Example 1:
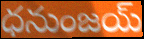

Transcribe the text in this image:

ధనుంజయ్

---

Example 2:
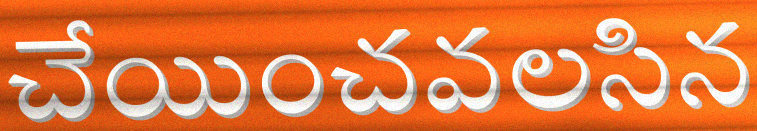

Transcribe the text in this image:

చేయించవలసిన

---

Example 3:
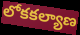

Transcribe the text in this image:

లోకకల్యాణ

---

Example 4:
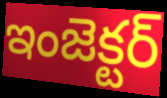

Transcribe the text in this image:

ఇంజెక్టర్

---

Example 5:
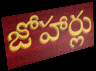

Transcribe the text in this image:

జోహార్లు